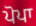
ਪੋਪਾ